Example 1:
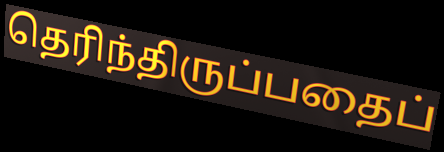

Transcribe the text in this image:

தெரிந்திருப்பதைப்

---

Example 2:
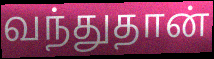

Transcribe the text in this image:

வந்துதான்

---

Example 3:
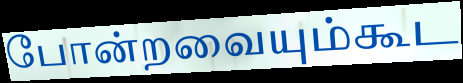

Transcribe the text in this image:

போன்றவையும்கூட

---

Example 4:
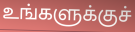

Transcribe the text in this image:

உங்களுக்குச்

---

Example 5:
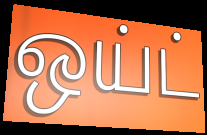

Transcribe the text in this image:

ஒய்ட்